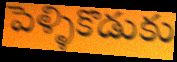
పెళ్ళికొడుకు